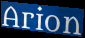
Arion